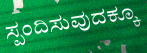
ಸ್ಪಂದಿಸುವುದಕ್ಕೂ